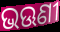
ଭଊଣୀ